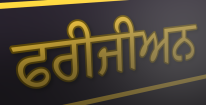
ਫਰੀਜੀਅਨ